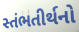
સ્તંભતીર્થનો